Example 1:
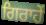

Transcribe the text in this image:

ਗਿਰਾਹੇਂ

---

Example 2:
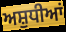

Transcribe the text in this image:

ਅਸ਼ੁਧੀਆਂ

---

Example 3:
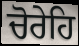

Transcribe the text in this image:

ਚੋਰੇਹਿ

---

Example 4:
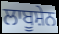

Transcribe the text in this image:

ਲਾਬੂਸ਼ੇਨ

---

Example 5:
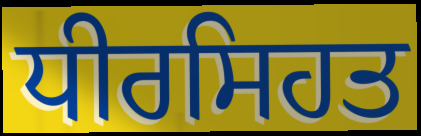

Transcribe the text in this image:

ਧੀਰਸਿਹਤ